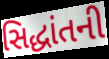
સિદ્ધાંતની